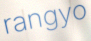
rangyo